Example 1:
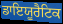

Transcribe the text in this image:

ਡਾਇਯੂਰੈਟਿਕ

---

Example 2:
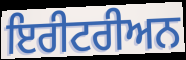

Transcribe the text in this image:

ਇਰੀਟਰੀਅਨ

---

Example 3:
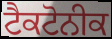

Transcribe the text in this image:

ਟੈਕਟੋਨੀਕ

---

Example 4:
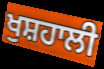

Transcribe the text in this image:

ਖੁਸ਼ਹਾਲੀ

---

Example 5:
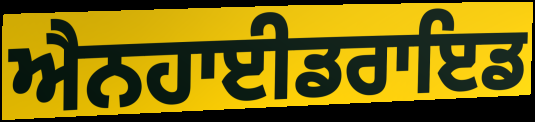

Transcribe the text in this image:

ਐਨਹਾਈਡਰਾਇਡ